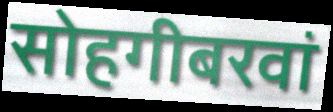
सोहगीबरवां